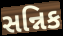
સન્નિક